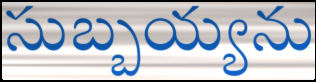
సుబ్బయ్యను